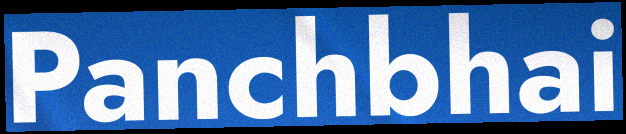
Panchbhai